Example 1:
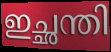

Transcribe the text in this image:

ഇച്ഛന്തി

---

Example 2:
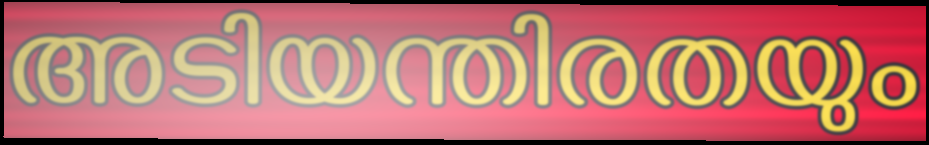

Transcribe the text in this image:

അടിയന്തിരതയും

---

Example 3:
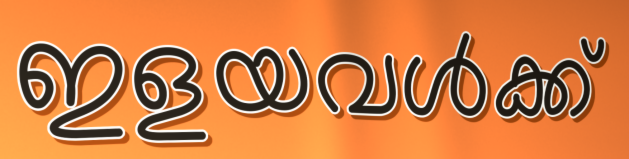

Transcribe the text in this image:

ഇളയവൾക്ക്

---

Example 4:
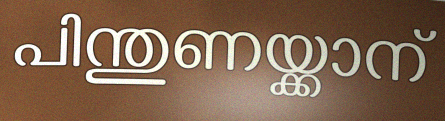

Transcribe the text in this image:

പിന്തുണയ്ക്കാന്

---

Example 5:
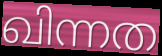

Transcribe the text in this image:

ഖിന്നത